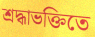
শ্রদ্ধাভক্তিতে